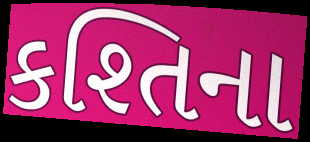
કશ્તિના